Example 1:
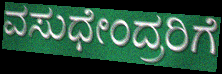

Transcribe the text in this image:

ವಸುಧೇಂದ್ರರಿಗೆ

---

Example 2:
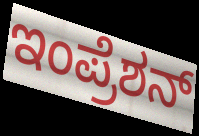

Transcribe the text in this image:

ಇಂಪ್ರೆಶನ್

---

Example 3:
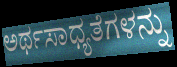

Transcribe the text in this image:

ಅರ್ಥಸಾಧ್ಯತೆಗಳನ್ನು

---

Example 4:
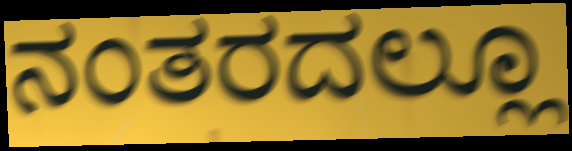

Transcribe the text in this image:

ನಂತರದಲ್ಲೂ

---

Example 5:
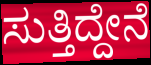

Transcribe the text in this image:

ಸುತ್ತಿದ್ದೇನೆ